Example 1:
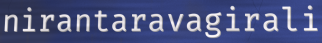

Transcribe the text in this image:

nirantaravagirali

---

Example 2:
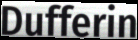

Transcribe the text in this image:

Dufferin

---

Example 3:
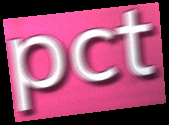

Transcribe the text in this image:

pct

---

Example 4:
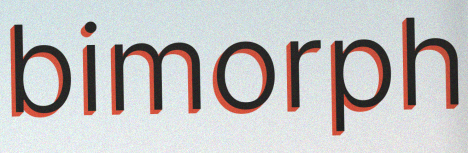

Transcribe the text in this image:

bimorph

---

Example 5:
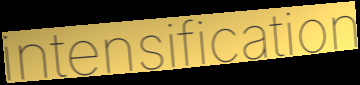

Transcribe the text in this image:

intensification